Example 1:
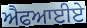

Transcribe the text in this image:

ਐਫਆਈਏ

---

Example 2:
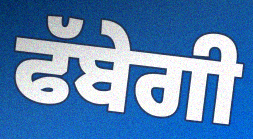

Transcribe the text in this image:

ਫੱਬੇਗੀ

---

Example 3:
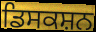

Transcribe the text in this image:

ਡਿਸਕਸ਼ਨ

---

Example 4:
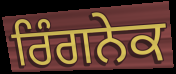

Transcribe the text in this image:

ਰਿੰਗਨੇਕ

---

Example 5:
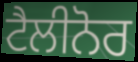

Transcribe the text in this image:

ਟੈਲੀਨੋਰ